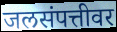
जलसंपत्तीवर